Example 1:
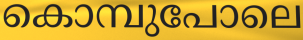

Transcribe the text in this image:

കൊമ്പുപോലെ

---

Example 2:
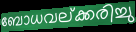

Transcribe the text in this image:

ബോധവല്ക്കരിച്ചു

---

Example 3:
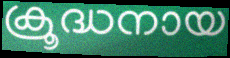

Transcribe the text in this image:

ക്രൂദ്ധനായ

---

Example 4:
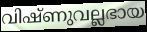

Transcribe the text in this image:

വിഷ്ണുവല്ലഭായ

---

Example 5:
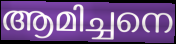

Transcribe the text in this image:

ആമിച്ചനെ